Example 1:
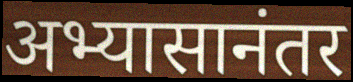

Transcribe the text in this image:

अभ्यासानंतर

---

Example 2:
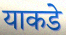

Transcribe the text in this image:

याकडे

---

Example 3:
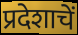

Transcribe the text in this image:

प्रदेशाचें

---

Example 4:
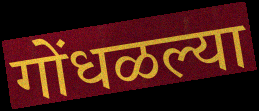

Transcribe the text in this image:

गोंधळल्या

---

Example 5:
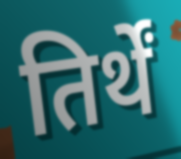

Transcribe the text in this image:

तिर्थें